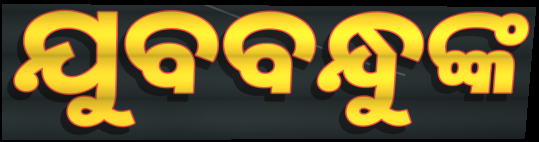
ଯୁବବନ୍ଧୁଙ୍କ